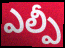
ఎల్పీ